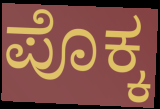
ಪೊಕ್ಕ